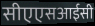
सीएएसआईसी